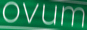
ovum